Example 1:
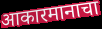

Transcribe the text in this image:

आकारमानाचा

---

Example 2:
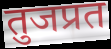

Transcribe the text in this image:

तुजप्रत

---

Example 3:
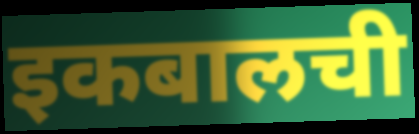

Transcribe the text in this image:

इकबालची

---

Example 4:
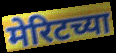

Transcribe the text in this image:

मेरिटच्या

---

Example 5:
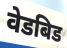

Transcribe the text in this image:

वेडबिड